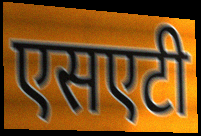
एसएटी